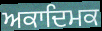
ਅਕਾਦਿਮਕ